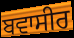
ਬਵਾਸੀਰ